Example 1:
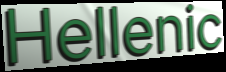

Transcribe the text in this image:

Hellenic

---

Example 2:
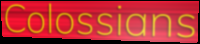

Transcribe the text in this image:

Colossians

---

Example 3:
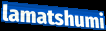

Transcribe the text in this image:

lamatshumi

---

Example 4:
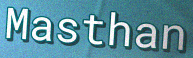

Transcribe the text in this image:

Masthan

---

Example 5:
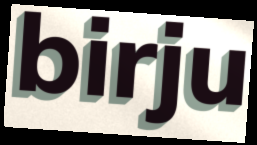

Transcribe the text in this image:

birju